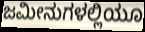
ಜಮೀನುಗಳಲ್ಲಿಯೂ